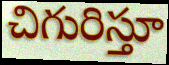
చిగురిస్తూ